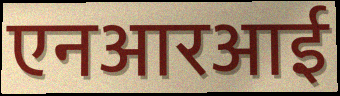
एनआरआई